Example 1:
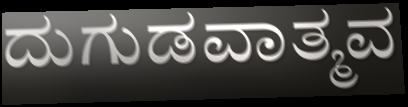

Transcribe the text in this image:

ದುಗುಡವಾತ್ಮವ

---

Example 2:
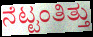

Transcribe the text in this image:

ನೆಟ್ಟಂತಿತ್ತು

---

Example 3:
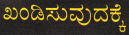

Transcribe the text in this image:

ಖಂಡಿಸುವುದಕ್ಕೆ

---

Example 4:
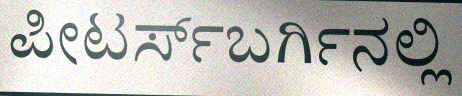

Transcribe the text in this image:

ಪೀಟರ್ಸ್‍ಬರ್ಗಿನಲ್ಲಿ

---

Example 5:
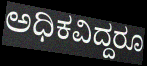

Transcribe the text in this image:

ಅಧಿಕವಿದ್ದರೂ